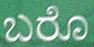
ಬರೊ